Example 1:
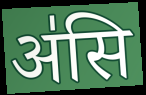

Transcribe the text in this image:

अ॑सि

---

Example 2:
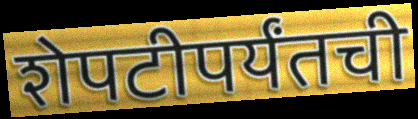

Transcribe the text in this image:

शेपटीपर्यंतची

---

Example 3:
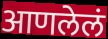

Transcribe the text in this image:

आणलेलं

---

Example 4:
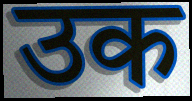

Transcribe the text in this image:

उक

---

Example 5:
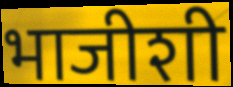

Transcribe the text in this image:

भाजीशी